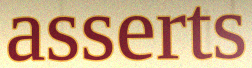
asserts